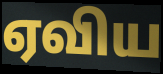
ஏவிய